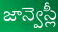
జాన్వెస్లీ